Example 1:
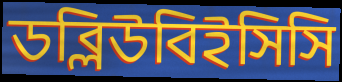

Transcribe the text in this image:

ডব্লিউবিইসিসি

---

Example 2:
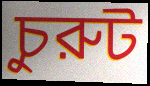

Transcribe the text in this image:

চুরুট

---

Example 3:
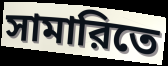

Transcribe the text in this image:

সামারিতে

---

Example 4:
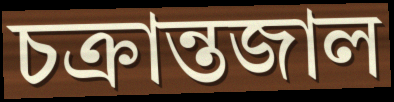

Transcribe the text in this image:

চক্রান্তজাল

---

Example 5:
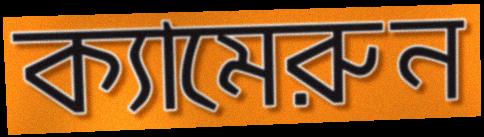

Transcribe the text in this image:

ক্যামেরুন